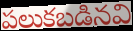
పలుకబడినవి